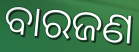
ବାରଜଣ